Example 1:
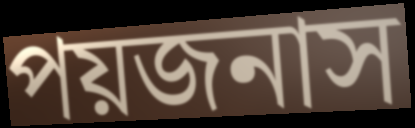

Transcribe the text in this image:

পয়জনাস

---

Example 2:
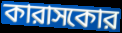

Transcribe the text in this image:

কারাসকোর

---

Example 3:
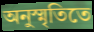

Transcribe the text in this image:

অনুস্মৃতিতে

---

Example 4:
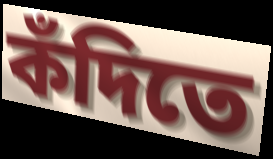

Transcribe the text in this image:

কঁদিতে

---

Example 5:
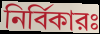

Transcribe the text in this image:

নির্বিকারঃ